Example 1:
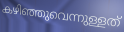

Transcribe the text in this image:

കഴിഞ്ഞുവെന്നുള്ളത്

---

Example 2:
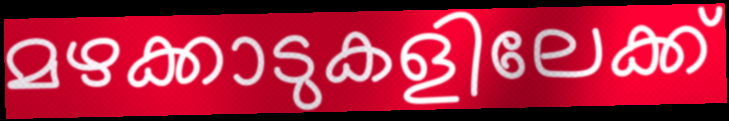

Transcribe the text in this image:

മഴക്കാടുകളിലേക്ക്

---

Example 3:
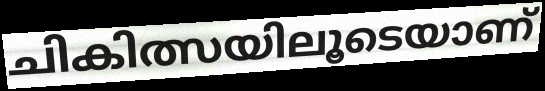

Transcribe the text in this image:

ചികിത്സയിലൂടെയാണ്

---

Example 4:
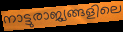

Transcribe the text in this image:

നാട്ടുരാജ്യങ്ങളിലെ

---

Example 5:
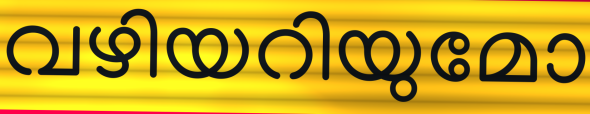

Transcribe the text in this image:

വഴിയറിയുമോ